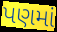
પણમાં